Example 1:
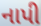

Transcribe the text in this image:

નાપી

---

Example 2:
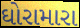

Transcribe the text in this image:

ઘોરામારા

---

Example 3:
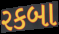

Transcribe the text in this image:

રકબા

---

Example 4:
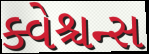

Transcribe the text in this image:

ક્વેશ્ચન્સ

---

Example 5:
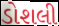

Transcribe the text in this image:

ડોશલી